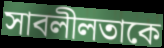
সাবলীলতাকে